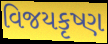
વિજયકૃષ્ણ